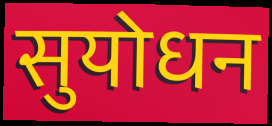
सुयोधन